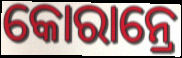
କୋରାନ୍ରେ